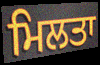
ਮਿਲਤਾ